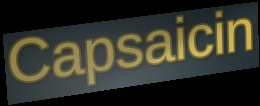
Capsaicin